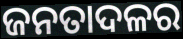
ଜନତାଦଳର